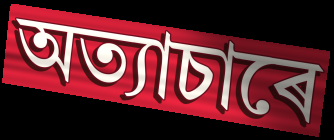
অত্যাচাৰে